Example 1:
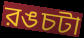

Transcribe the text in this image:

রঙচটা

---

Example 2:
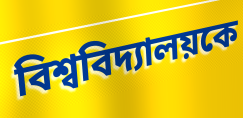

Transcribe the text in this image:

বিশ্ববিদ্যালয়কে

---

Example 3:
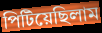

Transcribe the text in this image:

পিটিয়েছিলাম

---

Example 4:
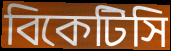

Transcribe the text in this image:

বিকেটিসি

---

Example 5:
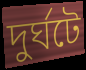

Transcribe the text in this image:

দুর্ঘটে